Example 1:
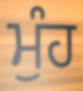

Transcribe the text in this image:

ਮੁੰਹ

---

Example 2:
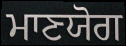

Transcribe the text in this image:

ਮਾਣਯੋਗ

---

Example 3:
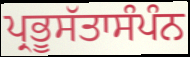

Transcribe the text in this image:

ਪ੍ਰਭੂਸੱਤਾਸੰਪੰਨ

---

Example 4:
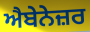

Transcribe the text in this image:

ਐਬੇਨੇਜ਼ਰ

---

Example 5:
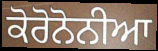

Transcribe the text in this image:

ਕੋਰੋਨੋਨੀਆ